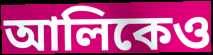
আলিকেও